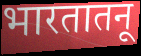
भारतातनू